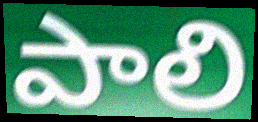
పాలి